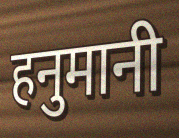
हनुमानी